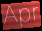
Apr